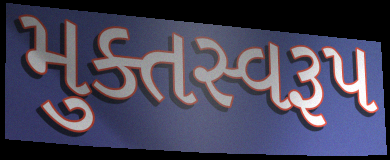
મુક્તસ્વરૂપ